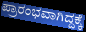
ಪ್ರಾರಂಭವಾಗಿದ್ದಕ್ಕೆ